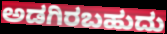
ಅಡಗಿರಬಹುದು